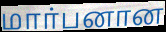
மார்பனான